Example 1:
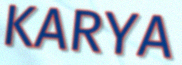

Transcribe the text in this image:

KARYA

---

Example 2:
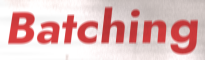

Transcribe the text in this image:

Batching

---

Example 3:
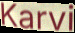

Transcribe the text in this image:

Karvi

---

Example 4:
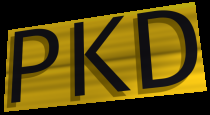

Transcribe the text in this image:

PKD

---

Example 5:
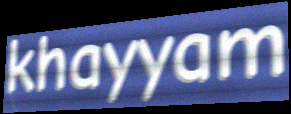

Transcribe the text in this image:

khayyam